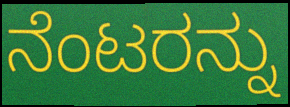
ನೆಂಟರನ್ನು